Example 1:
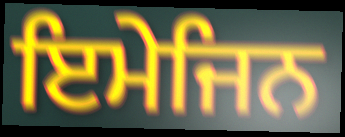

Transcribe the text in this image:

ਇਮੇਜਿਨ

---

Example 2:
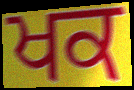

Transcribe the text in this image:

ਖਕ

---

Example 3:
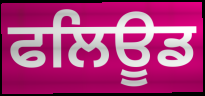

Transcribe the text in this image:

ਫਲਿਊਡ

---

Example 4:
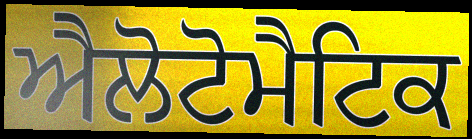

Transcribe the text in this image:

ਐਲੋਟੋਮੈਟਿਕ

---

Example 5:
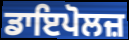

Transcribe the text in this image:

ਡਾਇਪੋਲਜ਼